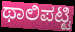
ಥಾಲಿಪಟ್ಟಿ